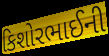
કિશોરભાઈની